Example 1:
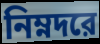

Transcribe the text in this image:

নিম্নদরে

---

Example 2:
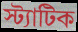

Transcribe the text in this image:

স্ট্যাটিক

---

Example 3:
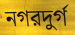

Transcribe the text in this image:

নগরদুর্গ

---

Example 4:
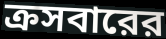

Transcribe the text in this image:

ক্রসবারের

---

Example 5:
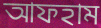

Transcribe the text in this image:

আফহাম